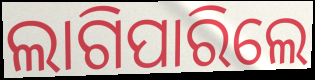
ଲାଗିପାରିଲେ